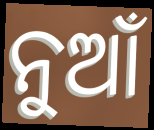
ନୁଆଁ